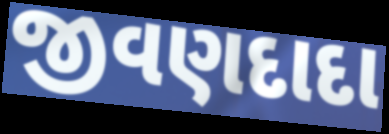
જીવણદાદા